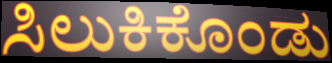
ಸಿಲುಕಿಕೊಂಡು